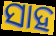
ସାହ